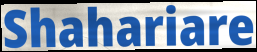
Shahariare